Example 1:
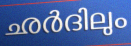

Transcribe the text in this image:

ഛർദിലും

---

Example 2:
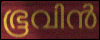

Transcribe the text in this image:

ഭൂവിൻ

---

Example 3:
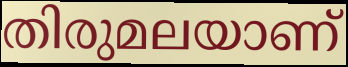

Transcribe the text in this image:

തിരുമലയാണ്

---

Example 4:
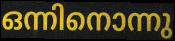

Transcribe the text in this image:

ഒന്നിനൊന്നു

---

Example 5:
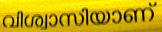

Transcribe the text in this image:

വിശ്വാസിയാണ്